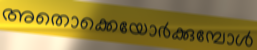
അതൊക്കെയോർക്കുമ്പോൾ